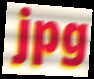
jpg